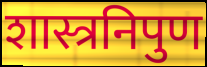
शास्त्रनिपुण